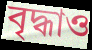
বৃদ্ধাও